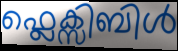
ഫ്ലെക്സിബിൾ